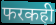
फरकही